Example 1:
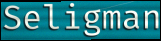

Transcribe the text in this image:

Seligman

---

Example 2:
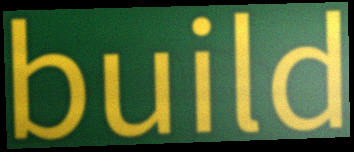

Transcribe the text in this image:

build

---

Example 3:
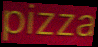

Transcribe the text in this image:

pizza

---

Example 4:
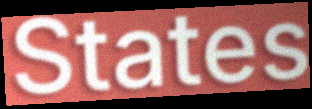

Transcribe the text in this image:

States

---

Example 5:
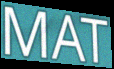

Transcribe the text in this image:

MAT